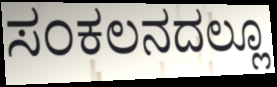
ಸಂಕಲನದಲ್ಲೂ